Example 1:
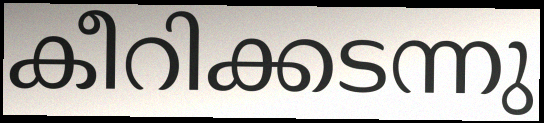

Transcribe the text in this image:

കീറിക്കടന്നു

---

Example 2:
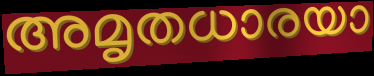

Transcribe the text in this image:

അമൃതധാരയാ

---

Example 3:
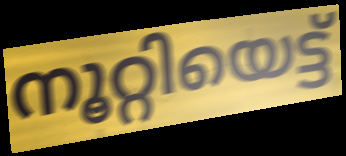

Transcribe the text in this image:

നൂറ്റിയെട്ട്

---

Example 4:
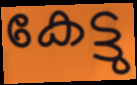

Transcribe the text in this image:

കേട്ടു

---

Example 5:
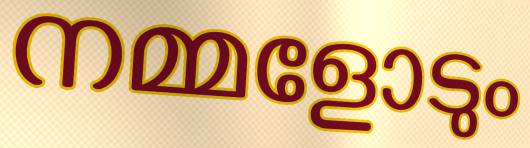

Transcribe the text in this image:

നമ്മളോടും